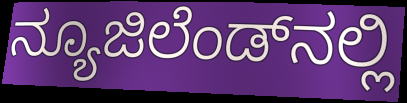
ನ್ಯೂಜಿಲೆಂಡ್‌ನಲ್ಲಿ